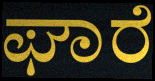
ಘಾರೆ